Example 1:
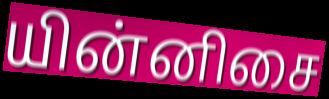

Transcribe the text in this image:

யின்னிசை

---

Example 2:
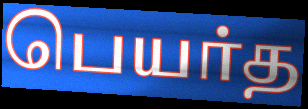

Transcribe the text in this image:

பெயர்த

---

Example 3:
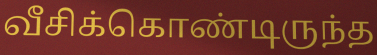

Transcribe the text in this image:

வீசிக்கொண்டிருந்த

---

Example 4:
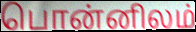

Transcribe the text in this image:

பொன்னிலம்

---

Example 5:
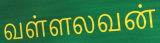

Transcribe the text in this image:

வள்ளலவன்